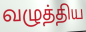
வழுத்திய